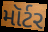
મૉર્ટર